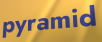
pyramid